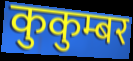
कुकुम्बर